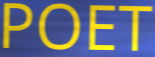
POET